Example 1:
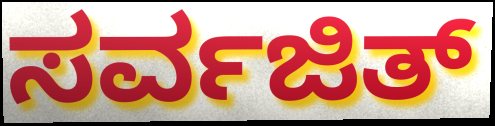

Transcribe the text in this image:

ಸರ್ವಜಿತ್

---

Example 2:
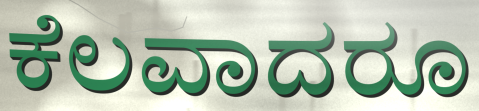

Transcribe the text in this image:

ಕೆಲವಾದರೂ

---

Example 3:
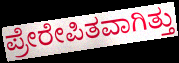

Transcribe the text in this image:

ಪ್ರೇರೇಪಿತವಾಗಿತ್ತು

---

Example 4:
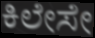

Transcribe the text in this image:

ಕಿಲೇಸೇ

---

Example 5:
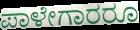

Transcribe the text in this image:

ಪಾಳೇಗಾರರೂ